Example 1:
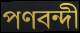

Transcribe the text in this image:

পণবন্দী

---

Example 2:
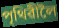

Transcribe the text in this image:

পৃথিৱীলৈ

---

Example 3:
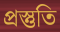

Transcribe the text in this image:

প্ৰস্তুতি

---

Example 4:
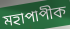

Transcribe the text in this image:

মহাপাপীক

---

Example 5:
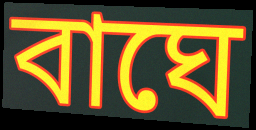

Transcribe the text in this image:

বাঘে